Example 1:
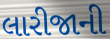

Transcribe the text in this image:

લારીજાની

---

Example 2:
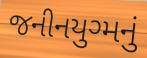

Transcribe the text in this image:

જનીનયુગ્મનું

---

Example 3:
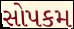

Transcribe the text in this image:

સોપકમ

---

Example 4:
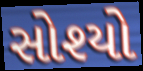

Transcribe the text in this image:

સોશ્યો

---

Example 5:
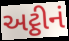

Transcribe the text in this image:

અટ્ઠીનં